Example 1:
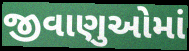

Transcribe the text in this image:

જીવાણુઓમાં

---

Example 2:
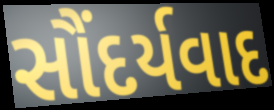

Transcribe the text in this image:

સૌંદર્યવાદ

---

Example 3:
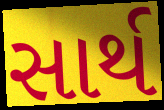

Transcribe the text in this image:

સાર્થ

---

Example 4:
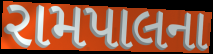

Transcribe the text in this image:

રામપાલના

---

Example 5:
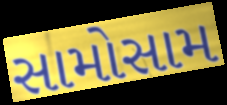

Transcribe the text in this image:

સામોસામ